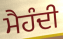
ਮੈਹੰਦੀ